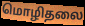
மொழிதலை